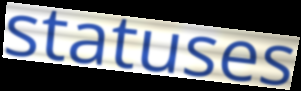
statuses